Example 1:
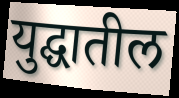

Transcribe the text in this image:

युद्घातील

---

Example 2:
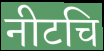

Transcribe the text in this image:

नीटचि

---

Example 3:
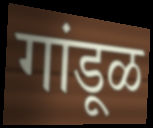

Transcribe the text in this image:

गांडूळ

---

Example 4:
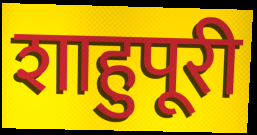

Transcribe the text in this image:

शाहुपूरी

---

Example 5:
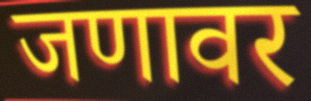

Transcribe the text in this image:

जणावर